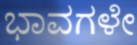
ಭಾವಗಳೇ